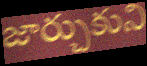
జార్చుకుని